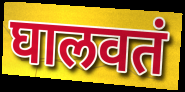
घालवतं